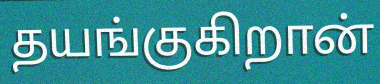
தயங்குகிறான்